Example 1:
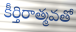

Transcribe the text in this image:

కీర్తిరాత్మవతో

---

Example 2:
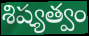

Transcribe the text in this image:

శిష్యత్వం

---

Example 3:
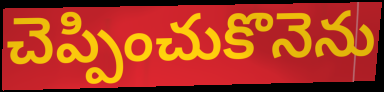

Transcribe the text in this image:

చెప్పించుకొనెను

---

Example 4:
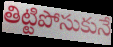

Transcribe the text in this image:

తిట్టిపోసుకునే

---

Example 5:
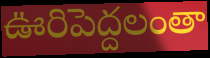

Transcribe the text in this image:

ఊరిపెద్దలంతా